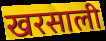
खरसाली